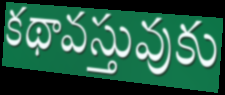
కథావస్తువుకు